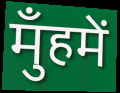
मुँहमें